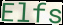
Elfs